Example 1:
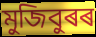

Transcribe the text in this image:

মুজিবুৰৰ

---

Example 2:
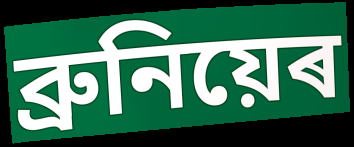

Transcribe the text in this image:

ব্ৰুনিয়েৰ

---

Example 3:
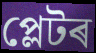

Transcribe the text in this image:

প্লেটৰ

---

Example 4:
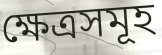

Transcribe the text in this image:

ক্ষেত্ৰসমূহ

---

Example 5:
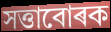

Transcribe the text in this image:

সত্তাবোৰক